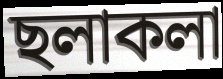
ছলাকলা